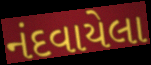
નંદવાયેલા